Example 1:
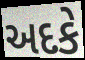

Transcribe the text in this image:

અદકે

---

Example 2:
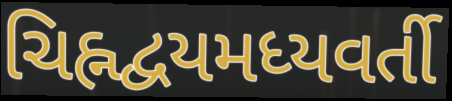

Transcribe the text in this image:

ચિહ્નદ્વયમધ્યવર્તી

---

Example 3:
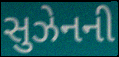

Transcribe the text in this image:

સુઝેનની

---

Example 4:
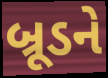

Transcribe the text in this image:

બ્રૂડને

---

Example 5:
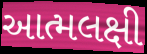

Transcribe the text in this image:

આત્મલક્ષી